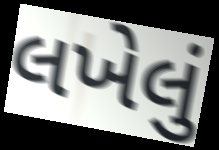
લખેલું